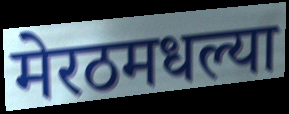
मेरठमधल्या